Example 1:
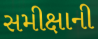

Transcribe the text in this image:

સમીક્ષાની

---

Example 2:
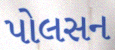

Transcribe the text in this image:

પોલસન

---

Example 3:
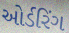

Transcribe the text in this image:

ઓર્ડરિંગ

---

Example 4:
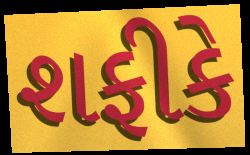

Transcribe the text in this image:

શફીકે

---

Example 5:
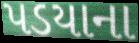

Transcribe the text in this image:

પડયાના